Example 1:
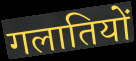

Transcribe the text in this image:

गलातियों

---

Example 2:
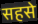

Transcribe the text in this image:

सहसे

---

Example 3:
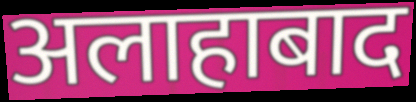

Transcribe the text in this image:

अलाहाबाद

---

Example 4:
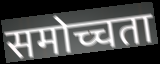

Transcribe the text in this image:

समोच्चता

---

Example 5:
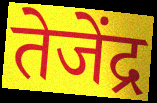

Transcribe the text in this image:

तेजेंद्र